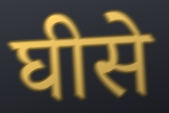
घीसे